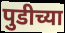
पुडीच्या